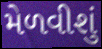
મેળવીશું